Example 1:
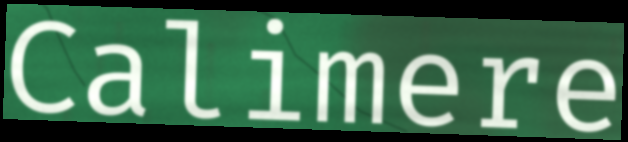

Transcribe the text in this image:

Calimere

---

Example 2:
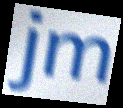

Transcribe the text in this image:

jm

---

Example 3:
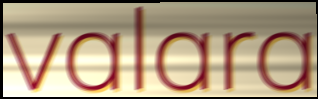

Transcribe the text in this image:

valara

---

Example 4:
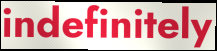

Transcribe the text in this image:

indefinitely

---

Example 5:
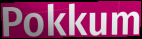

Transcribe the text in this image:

Pokkum